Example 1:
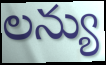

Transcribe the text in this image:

లన్యు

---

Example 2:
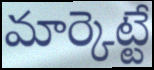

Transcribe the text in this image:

మార్కెట్టే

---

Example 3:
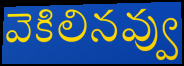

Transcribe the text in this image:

వెకిలినవ్వు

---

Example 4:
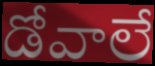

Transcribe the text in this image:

డోవాలే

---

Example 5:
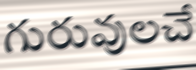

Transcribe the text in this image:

గురువులచే